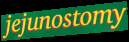
jejunostomy